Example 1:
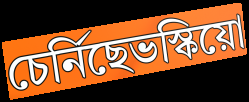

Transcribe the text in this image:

চেৰ্নিছেভস্কিয়ো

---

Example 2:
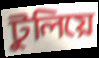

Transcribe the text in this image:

টুলিয়ে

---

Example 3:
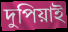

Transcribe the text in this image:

দুপিয়াই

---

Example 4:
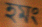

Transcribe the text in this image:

হমং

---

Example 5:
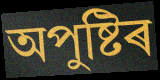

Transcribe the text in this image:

অপুষ্টিৰ